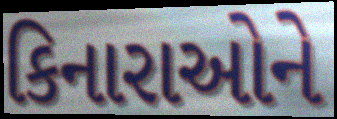
કિનારાઓને